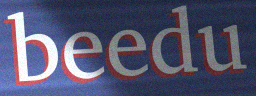
beedu